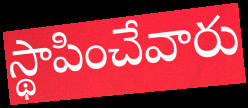
స్థాపించేవారు